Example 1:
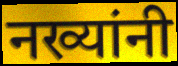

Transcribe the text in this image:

नख्यांनी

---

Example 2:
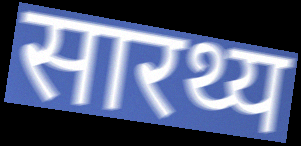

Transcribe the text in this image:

सारथ्य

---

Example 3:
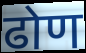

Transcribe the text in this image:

ढोण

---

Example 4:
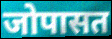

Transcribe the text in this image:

जोपासत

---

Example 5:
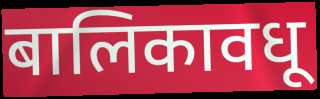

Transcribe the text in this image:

बालिकावधू